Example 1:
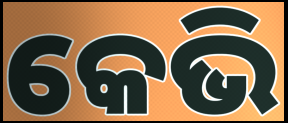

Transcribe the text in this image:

କେଭି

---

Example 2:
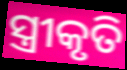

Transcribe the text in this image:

ସ୍ତ୍ରୀକୃତି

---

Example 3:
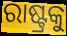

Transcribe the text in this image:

ରାଷ୍ଟ୍ରକୁ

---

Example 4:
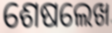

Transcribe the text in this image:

ଶେଷଲେଖ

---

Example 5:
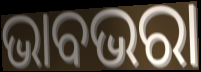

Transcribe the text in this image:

ଭାବଭରା